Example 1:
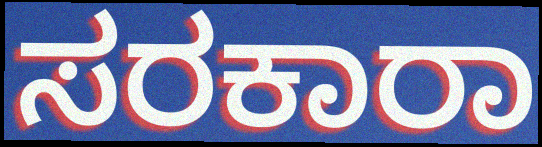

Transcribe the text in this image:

ಸರಕಾರಾ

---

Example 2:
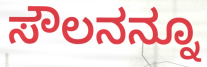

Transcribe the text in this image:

ಸೌಲನನ್ನೂ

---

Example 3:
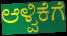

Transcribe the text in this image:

ಆಳ್ವಿಕೆಗೆ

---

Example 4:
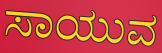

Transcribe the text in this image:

ಸಾಯುವ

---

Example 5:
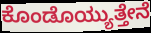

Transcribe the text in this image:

ಕೊಂಡೊಯ್ಯುತ್ತೇನೆ